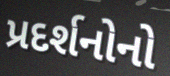
પ્રદર્શનોનો